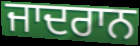
ਜਾਦਰਾਨ